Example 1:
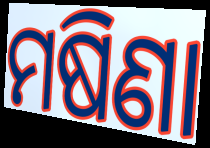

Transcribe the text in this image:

ମଷିଣା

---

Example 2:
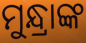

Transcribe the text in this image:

ମୁନ୍ଧ୍ରାଙ୍କ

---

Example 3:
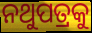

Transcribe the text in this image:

ନଥୁପତ୍ରକୁ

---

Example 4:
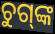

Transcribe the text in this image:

ଚୁଗ୍‌ଙ୍କ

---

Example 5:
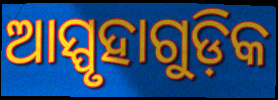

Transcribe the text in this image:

ଆସ୍ପୃହାଗୁଡ଼ିକ